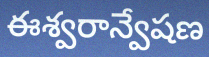
ఈశ్వరాన్వేషణ